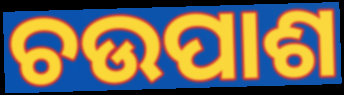
ଚଉପାଶ